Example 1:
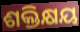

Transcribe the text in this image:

ଶକ୍ତିକ୍ଷୟ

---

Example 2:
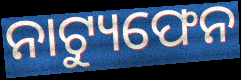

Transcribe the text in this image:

ନାଟ୍ୟୁଫେନ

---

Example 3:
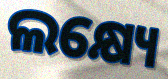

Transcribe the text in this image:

ଲକ୍ଷ୍ୟେ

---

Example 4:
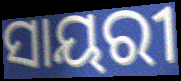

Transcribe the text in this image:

ସାୟରୀ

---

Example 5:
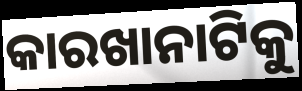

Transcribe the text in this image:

କାରଖାନାଟିକୁ